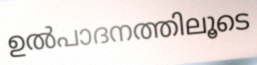
ഉൽപാദനത്തിലൂടെ